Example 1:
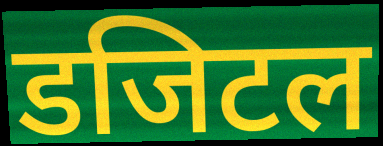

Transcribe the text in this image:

डजिटल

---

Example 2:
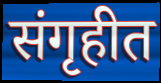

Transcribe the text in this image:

संगृहीत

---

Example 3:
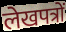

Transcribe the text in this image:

लेखपत्रों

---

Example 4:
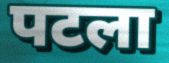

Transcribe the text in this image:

पटला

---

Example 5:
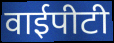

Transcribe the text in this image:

वाईपीटी